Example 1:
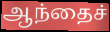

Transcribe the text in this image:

ஆந்தைச்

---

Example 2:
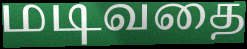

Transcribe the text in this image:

மடிவதை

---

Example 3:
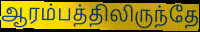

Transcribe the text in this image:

ஆரம்பத்திலிருந்தே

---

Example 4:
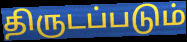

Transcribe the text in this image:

திருடப்படும்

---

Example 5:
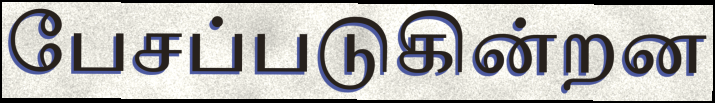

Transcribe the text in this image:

பேசப்படுகின்றன